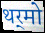
थर्मो